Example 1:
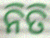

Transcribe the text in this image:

ନିତି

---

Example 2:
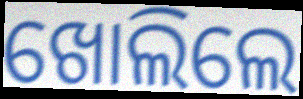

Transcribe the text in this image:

ଖୋଲିଲେ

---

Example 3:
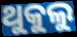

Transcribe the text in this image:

ଥୁକୁଲୁ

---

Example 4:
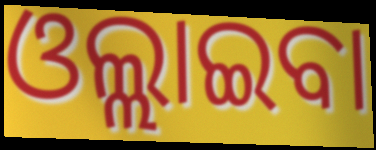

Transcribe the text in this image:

ଓଲ୍ଲାଇବା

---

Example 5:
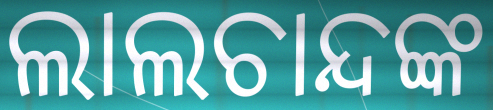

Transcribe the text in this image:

ଲାଲଚାନ୍ଦଙ୍କ